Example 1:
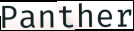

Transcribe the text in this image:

Panther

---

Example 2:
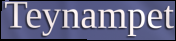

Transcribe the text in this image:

Teynampet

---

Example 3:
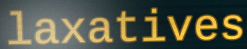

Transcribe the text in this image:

laxatives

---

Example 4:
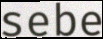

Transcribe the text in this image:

sebe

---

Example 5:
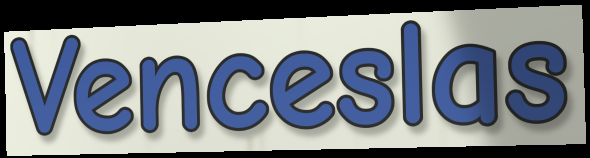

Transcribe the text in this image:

Venceslas